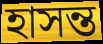
হাসন্ত